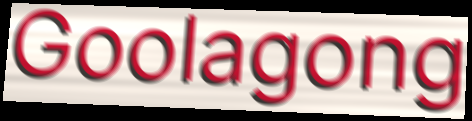
Goolagong